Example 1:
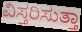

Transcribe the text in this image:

ವಿಸ್ತರಿಸುತ್ತಾ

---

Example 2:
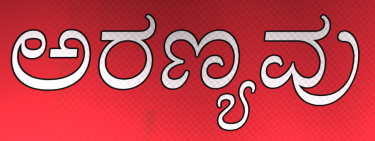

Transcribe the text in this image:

ಅರಣ್ಯವು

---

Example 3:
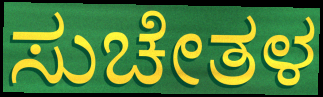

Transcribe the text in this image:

ಸುಚೇತಳ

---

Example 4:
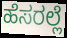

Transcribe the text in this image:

ಹೆಸರಲ್ಲೆ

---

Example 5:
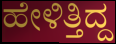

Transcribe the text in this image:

ಹೇಳಿತ್ತಿದ್ದ